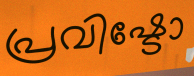
പ്രവിഷ്ടോ